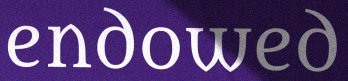
endowed